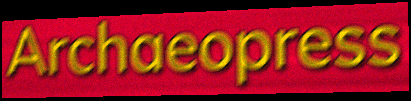
Archaeopress